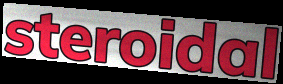
steroidal